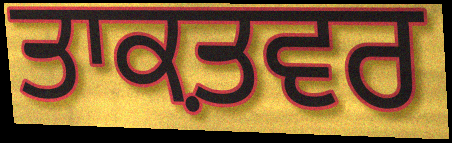
ਤਾਕ਼ਤਵਰ